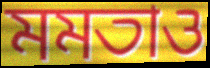
মমতাও